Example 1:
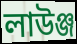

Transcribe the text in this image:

লাউঞ্জ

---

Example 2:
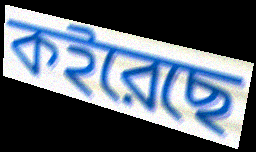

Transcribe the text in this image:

কইরেছে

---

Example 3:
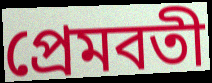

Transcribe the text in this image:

প্রেমবতী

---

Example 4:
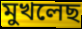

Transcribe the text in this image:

মুখলেছ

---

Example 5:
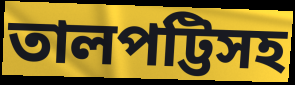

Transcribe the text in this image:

তালপট্টিসহ